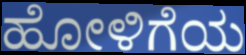
ಹೋಳಿಗೆಯ